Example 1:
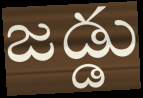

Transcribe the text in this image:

జడ్డు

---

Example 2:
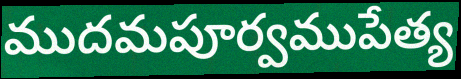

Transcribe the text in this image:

ముదమపూర్వముపేత్య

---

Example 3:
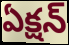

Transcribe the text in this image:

ఏక్షన్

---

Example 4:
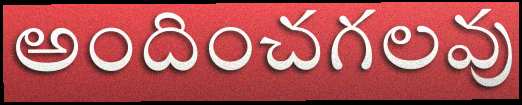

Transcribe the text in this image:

అందించగలవు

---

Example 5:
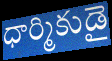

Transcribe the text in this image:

ధార్మికుడై